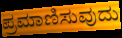
ಪ್ರಮಾಣಿಸುವುದು